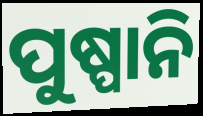
ପୁଷ୍ପାନି